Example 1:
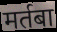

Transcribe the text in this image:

मर्तबा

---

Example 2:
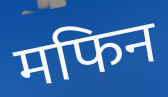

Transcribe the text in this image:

मफिन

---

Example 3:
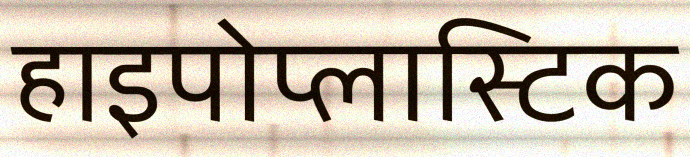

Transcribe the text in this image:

हाइपोप्लास्टिक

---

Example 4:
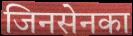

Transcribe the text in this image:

जिनसेनका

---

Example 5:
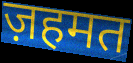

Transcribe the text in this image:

ज़हमत